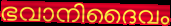
ഭവാനിദൈവം